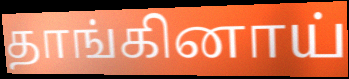
தாங்கினாய்